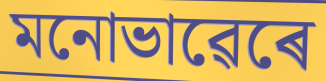
মনোভাৱেৰে